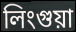
লিংগুয়া